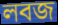
লবজ